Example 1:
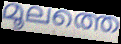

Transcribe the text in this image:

മൂലത്തെ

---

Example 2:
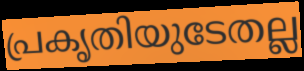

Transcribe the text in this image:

പ്രകൃതിയുടേതല്ല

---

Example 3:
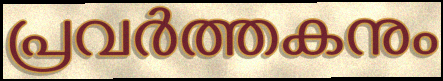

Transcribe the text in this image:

പ്രവർത്തകനും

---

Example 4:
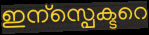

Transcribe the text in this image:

ഇന്സ്പെക്ടറെ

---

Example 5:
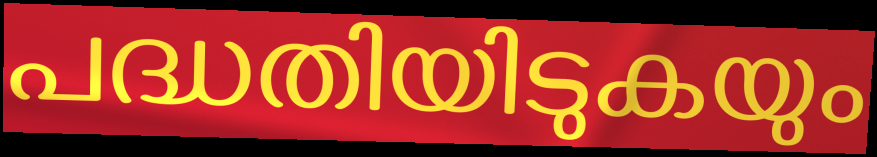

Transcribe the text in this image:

പദ്ധതിയിടുകയും